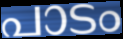
പാടം